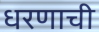
धरणाची